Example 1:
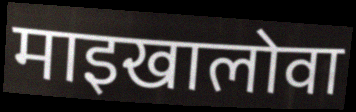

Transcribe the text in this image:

माइखालोवा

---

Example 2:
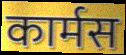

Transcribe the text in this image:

कार्मस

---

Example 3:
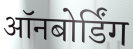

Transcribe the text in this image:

ऑनबोर्डिंग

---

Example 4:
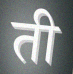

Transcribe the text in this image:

ती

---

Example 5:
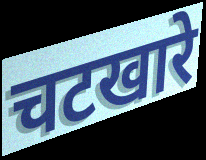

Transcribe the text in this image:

चटखारे